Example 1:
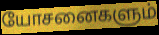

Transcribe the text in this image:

யோசனைகளும்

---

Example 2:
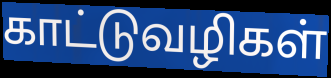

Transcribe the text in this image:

காட்டுவழிகள்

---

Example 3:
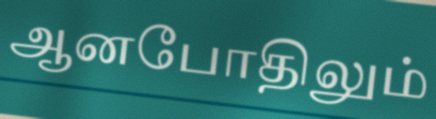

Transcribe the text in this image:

ஆனபோதிலும்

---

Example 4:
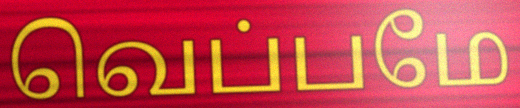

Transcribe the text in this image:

வெப்பமே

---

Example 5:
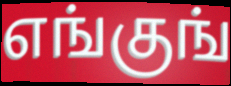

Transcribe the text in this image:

எங்குங்